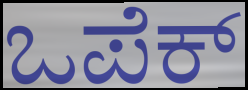
ಒಪೆಕ್